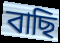
বাছি